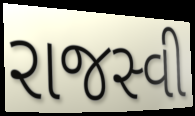
રાજસ્વી